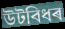
উটবিধৰ